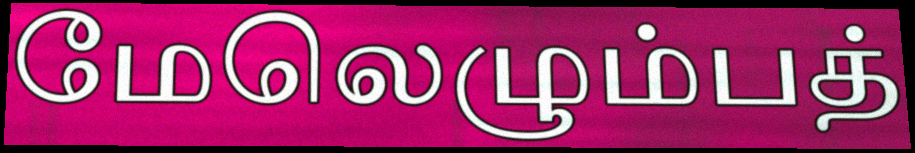
மேலெழும்பத்